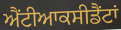
ਐਂਟੀਆਕਸੀਡੈਂਟਾਂ